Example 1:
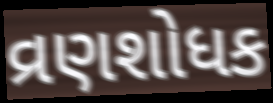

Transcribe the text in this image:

વ્રણશોધક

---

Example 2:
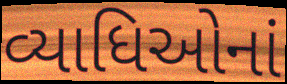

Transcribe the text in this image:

વ્યાધિઓનાં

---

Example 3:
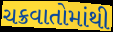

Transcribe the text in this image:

ચક્રવાતોમાંથી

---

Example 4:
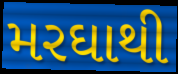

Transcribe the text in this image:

મરઘાથી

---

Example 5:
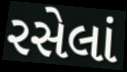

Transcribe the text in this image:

રસેલાં